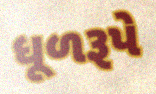
ધૂળરૂપે